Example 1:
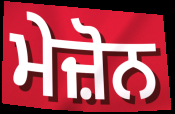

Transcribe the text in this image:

ਮੇਜ਼ੋਨ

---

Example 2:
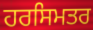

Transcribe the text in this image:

ਹਰਸਿਮਤਰ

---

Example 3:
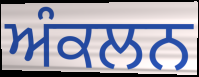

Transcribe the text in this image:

ਅੰਕਲਨ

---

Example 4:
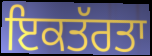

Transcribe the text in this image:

ਇਕਤੱਰਤਾ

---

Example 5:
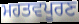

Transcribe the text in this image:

ਮਹਤਵਪੂਰਣ